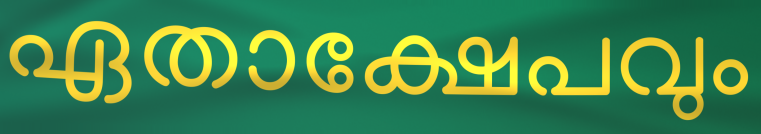
ഏതാക്ഷേപവും